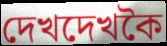
দেখদেখকৈ